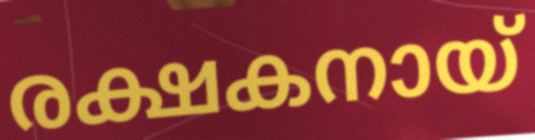
രക്ഷകനായ്